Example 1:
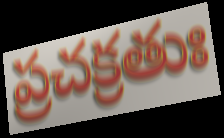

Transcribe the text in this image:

ప్రచక్రతుః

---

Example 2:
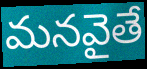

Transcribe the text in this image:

మనవైతే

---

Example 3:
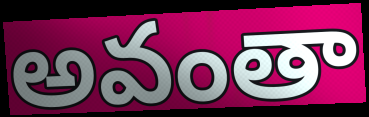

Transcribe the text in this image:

అవంతా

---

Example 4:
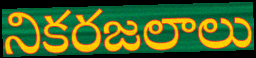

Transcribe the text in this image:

నికరజలాలు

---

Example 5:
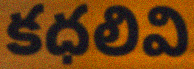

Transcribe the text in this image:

కధలివి